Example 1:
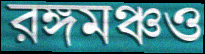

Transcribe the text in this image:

রঙ্গমঞ্চও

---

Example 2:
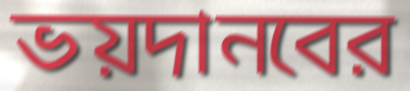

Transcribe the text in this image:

ভয়দানবের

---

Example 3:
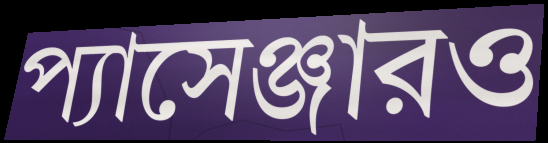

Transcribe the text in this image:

প্যাসেঞ্জারও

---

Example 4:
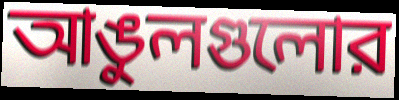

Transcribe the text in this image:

আঙুলগুলোর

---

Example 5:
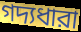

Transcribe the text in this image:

গদ্যধারা